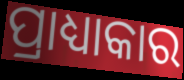
ପ୍ରାଧ୍ୟାକାର